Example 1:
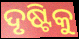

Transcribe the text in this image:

ଦୃଷ୍ଟିକୁ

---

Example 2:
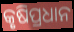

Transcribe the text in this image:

କୃଷିପ୍ରଧାନ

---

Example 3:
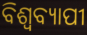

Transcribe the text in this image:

ବିଶ୍ଵବ୍ୟାପୀ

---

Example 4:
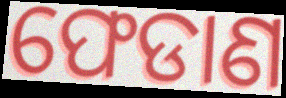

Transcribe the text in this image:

ଫେଡାଣ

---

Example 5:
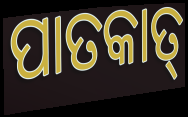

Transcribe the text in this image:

ପାତକାତ୍